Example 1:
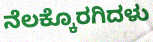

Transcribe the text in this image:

ನೆಲಕ್ಕೊರಗಿದಳು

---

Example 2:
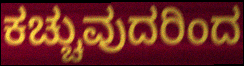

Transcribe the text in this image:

ಕಚ್ಚುವುದರಿಂದ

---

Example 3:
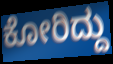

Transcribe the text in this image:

ಕೋರಿದ್ದು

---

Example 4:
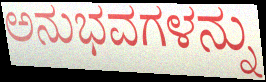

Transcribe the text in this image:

ಅನುಭವಗಳನ್ನು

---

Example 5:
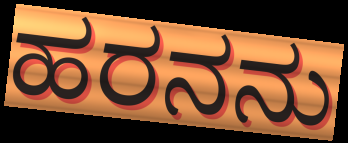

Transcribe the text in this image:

ಹರನನು